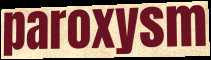
paroxysm